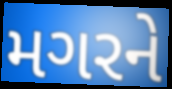
મગરને